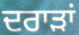
ਦਰਾੜਾਂ